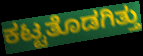
ಕಟ್ಟತೊಡಗಿತ್ತು